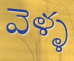
వెళ్ళ